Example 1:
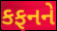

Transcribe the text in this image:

કફનને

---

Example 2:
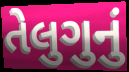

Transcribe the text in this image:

તેલુગુનું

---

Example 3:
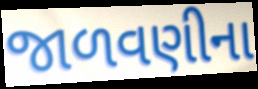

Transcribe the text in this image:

જાળવણીના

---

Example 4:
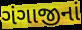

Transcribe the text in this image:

ગંગાજીનાં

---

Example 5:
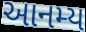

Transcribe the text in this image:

આનમ્ય